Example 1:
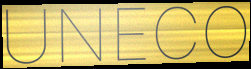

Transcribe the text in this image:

UNECO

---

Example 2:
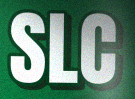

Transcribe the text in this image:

SLC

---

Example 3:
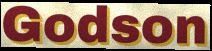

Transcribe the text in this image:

Godson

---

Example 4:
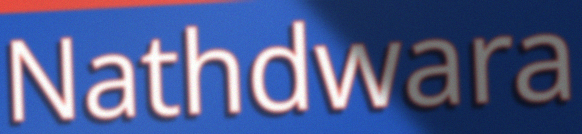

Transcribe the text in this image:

Nathdwara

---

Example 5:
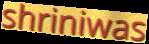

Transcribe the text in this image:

shriniwas